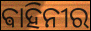
ଵାହିନୀର